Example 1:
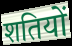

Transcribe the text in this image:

शतियों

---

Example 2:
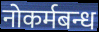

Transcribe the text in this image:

नोकर्मबन्ध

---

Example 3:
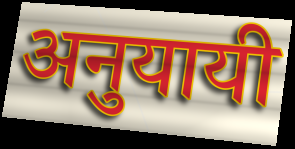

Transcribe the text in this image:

अनुयायी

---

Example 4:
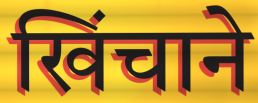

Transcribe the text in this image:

खिंचाने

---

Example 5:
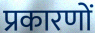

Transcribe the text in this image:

प्रकारणों